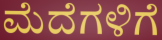
ಮೆದೆಗಳಿಗೆ